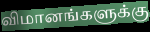
விமானங்களுக்கு